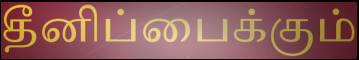
தீனிப்பைக்கும்